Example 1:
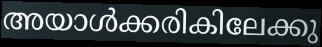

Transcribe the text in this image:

അയാൾക്കരികിലേക്കു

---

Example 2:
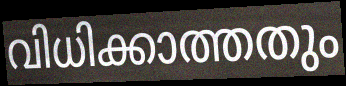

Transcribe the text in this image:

വിധിക്കാത്തതും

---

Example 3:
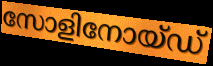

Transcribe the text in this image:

സോളിനോയ്ഡ്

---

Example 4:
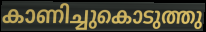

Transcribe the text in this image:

കാണിച്ചുകൊടുത്തു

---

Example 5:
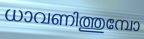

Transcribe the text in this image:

ധാവണിത്തുമ്പോ